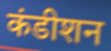
कंडीशन